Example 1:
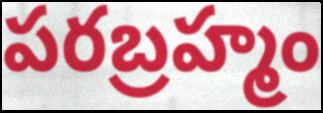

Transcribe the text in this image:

పరబ్రహ్మం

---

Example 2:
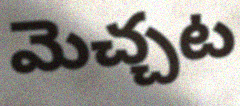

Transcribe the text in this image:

మెచ్చట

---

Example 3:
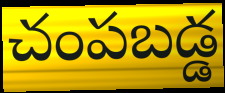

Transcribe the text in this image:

చంపబడ్డ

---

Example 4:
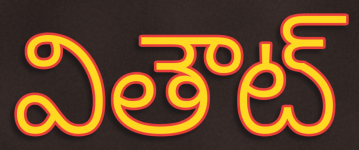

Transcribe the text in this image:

వితౌట్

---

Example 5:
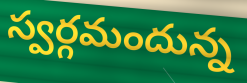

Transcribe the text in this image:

స్వర్గమందున్న